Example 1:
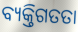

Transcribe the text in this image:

ବ୍ୟକ୍ତିଗତତା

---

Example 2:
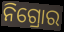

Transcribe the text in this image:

ନିଗ୍ରୋର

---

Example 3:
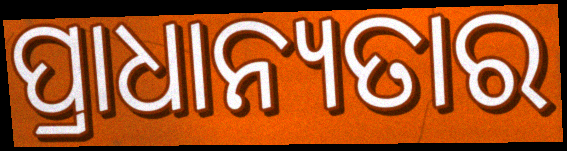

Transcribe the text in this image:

ପ୍ରାଧାନ୍ୟତାର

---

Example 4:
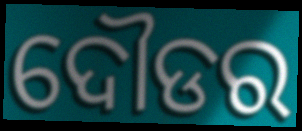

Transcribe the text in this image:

ଦୌଡର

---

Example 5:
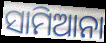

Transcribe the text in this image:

ସାମିଆନା